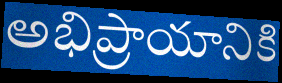
అభిప్రాయానికి